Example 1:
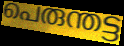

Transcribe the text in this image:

പെരുന്തട്ട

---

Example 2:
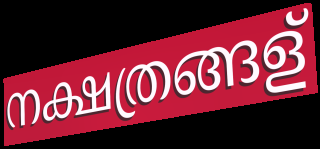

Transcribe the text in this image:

നക്ഷത്രങ്ങള്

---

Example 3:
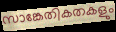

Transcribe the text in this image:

സാങ്കേതികതകളും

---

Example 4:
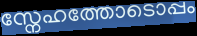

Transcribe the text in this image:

സ്നേഹത്തോടൊപ്പം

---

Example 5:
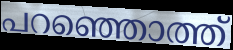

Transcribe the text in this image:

പറഞ്ഞൊത്ത്